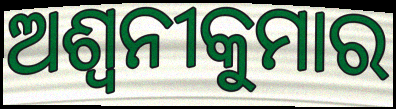
ଅଶ୍ୱନୀକୁମାର